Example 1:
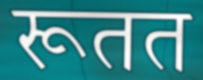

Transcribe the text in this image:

रूतत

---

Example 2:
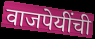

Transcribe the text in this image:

वाजपेयींची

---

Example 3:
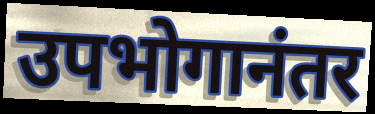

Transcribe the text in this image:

उपभोगानंतर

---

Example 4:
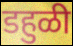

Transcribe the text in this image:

डहुळी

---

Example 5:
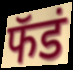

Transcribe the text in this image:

फॅडं